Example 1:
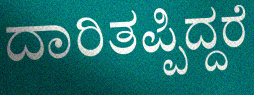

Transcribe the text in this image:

ದಾರಿತಪ್ಪಿದ್ದರೆ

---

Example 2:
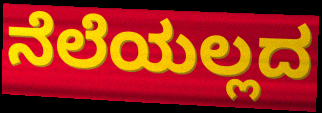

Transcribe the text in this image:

ನೆಲೆಯಲ್ಲದ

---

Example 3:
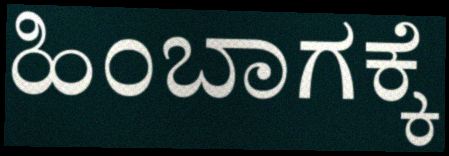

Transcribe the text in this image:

ಹಿಂಬಾಗಕ್ಕೆ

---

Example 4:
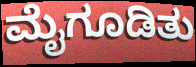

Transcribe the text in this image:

ಮೈಗೂಡಿತು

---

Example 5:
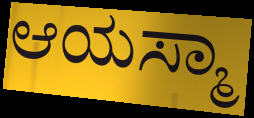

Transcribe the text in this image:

ಆಯಸ್ಮಾ